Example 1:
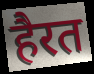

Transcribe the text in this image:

हैरत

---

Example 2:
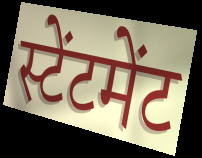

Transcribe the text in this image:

स्टेंटमेंट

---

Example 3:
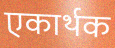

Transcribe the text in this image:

एकार्थक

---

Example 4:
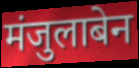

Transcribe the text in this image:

मंजुलाबेन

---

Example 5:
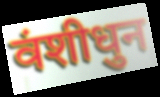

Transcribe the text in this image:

वंशीधुन